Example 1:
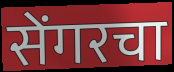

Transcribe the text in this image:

सेंगरचा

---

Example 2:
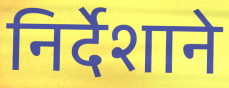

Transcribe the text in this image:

निर्देशाने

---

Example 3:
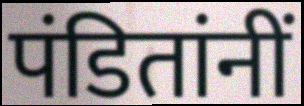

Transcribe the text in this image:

पंडितांनीं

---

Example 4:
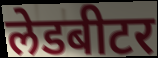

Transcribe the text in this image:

लेडबीटर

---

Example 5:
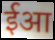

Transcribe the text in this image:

ईआ